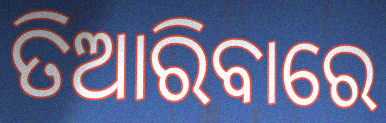
ତିଆରିବାରେ